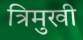
त्रिमुखी